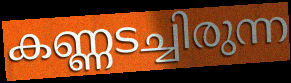
കണ്ണടച്ചിരുന്ന